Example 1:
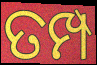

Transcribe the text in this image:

ତମ୍ପ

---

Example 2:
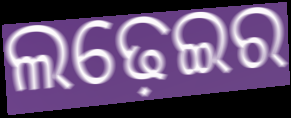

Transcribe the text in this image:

ଲଢ଼େଇର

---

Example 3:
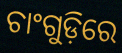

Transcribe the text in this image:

ଚାଂଗୁଡ଼ିରେ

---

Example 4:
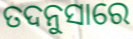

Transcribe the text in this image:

ତଦନୁସାରେ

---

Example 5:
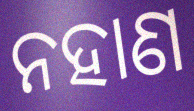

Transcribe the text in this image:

ନହାଣ